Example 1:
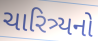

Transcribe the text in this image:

ચારિત્ર્યનો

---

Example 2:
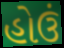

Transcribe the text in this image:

હોઉં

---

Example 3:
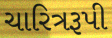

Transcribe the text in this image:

ચારિત્રરૂપી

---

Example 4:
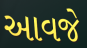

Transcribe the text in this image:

આવજે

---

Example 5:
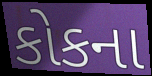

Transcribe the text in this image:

કોકના